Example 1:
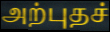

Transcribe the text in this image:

அற்புதச்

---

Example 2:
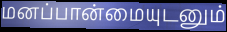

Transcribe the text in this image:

மனப்பான்மையுடனும்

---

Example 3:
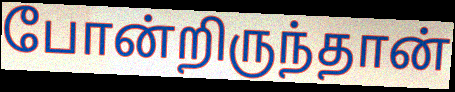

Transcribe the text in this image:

போன்றிருந்தான்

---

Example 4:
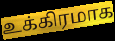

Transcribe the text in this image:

உக்கிரமாக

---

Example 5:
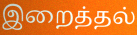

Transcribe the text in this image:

இறைத்தல்